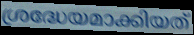
ശ്രദ്ധേയമാക്കിയത്